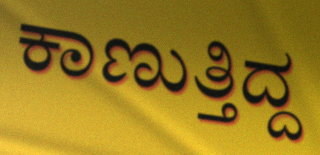
ಕಾಣುತ್ತಿದ್ದ